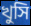
খুসি